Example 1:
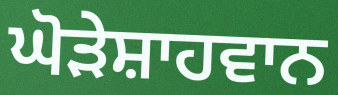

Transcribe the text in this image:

ਘੋੜੇਸ਼ਾਹਵਾਨ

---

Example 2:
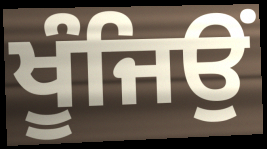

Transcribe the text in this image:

ਖੂੰਜਿਉਂ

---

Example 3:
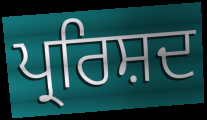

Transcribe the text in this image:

ਪ੍ਰਰਿਸ਼ਦ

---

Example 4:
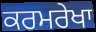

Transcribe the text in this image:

ਕਰਮਰੇਖਾ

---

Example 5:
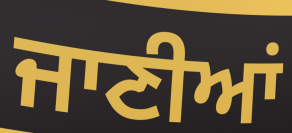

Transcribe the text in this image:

ਜਾਣੀਆਂ